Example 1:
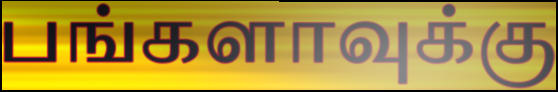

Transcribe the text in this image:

பங்களாவுக்கு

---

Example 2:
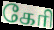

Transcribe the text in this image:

கேரி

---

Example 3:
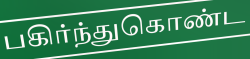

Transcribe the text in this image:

பகிர்ந்துகொண்ட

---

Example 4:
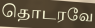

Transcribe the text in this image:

தொடரவே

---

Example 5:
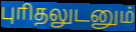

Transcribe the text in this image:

புரிதலுடனும்